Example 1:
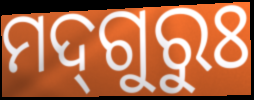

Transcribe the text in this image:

ମଦ୍‌ଗୁରୁଃ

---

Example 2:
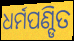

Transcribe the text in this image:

ଧର୍ମପଣ୍ଡିତ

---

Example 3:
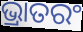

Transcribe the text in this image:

ଭ୍ରାତରଂ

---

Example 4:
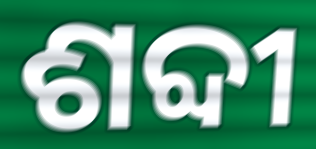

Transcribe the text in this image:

ଶବ୍ଦୀ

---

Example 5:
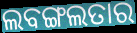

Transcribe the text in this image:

ଲବଙ୍ଗଲତାର